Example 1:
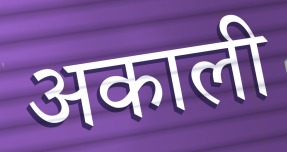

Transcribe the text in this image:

अकाली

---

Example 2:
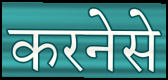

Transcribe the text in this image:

करनेसे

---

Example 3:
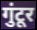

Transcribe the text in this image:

गुंटूर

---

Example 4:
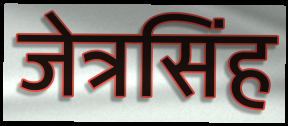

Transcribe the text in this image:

जेत्रसिंह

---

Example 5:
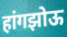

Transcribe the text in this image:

हांगझोऊ